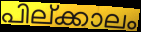
പില്ക്കാലം